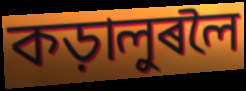
কড়ালুৰলৈ